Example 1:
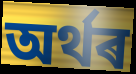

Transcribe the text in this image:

অৰ্থৰ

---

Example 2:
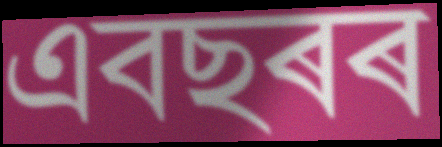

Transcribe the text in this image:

এবছৰৰ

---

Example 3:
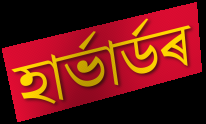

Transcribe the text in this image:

হাৰ্ভাৰ্ডৰ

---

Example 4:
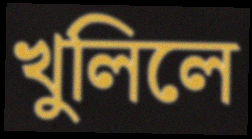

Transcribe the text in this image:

খুলিলে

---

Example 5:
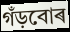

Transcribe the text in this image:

গঁড়বোৰ